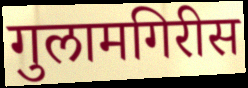
गुलामगिरीस